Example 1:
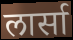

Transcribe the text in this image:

लार्सा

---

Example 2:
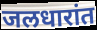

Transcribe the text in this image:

जलधारांत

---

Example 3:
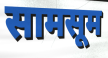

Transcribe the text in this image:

सामसूम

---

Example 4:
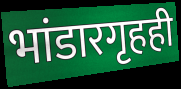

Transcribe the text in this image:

भांडारगृहही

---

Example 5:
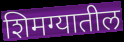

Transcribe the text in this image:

शिमग्यातील